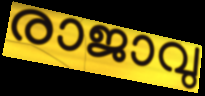
രാജാവു